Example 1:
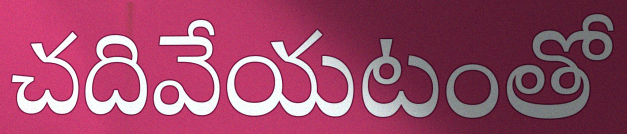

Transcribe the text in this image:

చదివేయటంతో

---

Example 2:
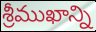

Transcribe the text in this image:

శ్రీముఖాన్ని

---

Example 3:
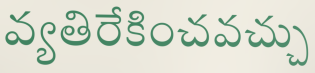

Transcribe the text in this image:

వ్యతిరేకించవచ్చు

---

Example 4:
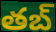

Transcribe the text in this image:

తబ్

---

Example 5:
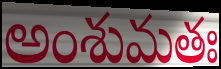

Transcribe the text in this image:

అంశుమతః